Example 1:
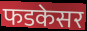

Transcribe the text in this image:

फडकेसर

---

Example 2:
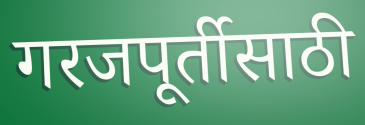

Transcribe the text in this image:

गरजपूर्तीसाठी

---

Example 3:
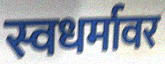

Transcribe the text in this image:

स्वधर्मावर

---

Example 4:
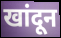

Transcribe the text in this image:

खांदून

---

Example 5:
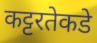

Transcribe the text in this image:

कट्टरतेकडे